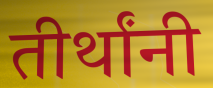
तीर्थांनी